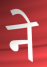
ने